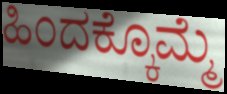
ಹಿಂದಕ್ಕೊಮ್ಮೆ